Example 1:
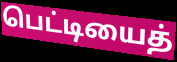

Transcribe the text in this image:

பெட்டியைத்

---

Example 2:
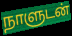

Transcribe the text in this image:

நாளுடன்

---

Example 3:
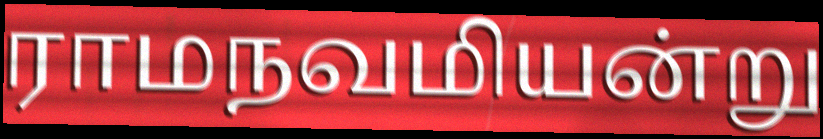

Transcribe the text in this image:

ராமநவமியன்று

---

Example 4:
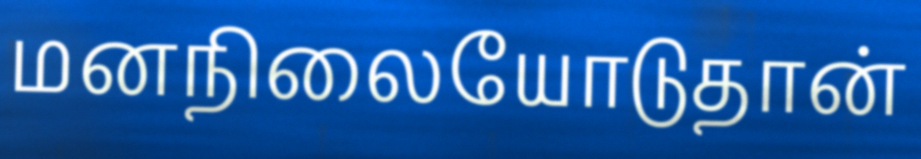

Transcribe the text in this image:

மனநிலையோடுதான்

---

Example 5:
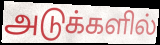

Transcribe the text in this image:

அடுக்களில்